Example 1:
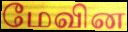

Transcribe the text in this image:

மேவின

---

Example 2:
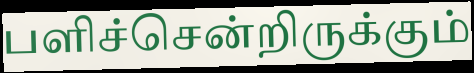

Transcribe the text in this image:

பளிச்சென்றிருக்கும்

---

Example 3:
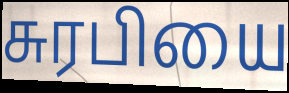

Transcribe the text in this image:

சுரபியை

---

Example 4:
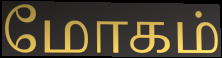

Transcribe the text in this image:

மோகம்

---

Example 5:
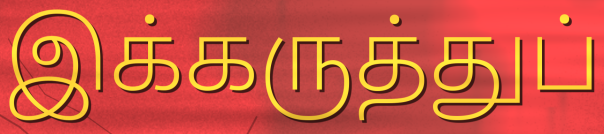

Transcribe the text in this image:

இக்கருத்துப்